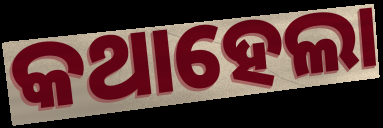
କଥାହେଲା